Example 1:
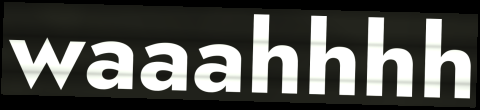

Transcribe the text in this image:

waaahhhh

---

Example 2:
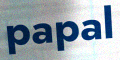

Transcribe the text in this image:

papal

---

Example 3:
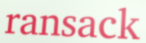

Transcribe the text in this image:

ransack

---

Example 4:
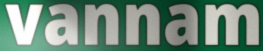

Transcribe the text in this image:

vannam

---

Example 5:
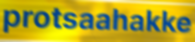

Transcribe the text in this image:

protsaahakke